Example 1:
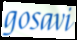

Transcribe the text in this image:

gosavi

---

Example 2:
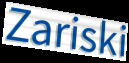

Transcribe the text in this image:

Zariski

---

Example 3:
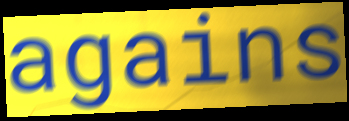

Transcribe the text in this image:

agains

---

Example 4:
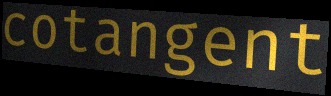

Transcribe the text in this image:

cotangent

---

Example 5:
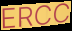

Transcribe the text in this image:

ERCC